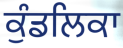
ਕੁੰਡਲਿਕਾ